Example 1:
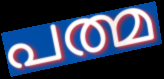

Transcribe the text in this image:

പത്മ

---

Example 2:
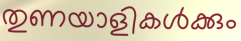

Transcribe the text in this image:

തുണയാളികൾക്കും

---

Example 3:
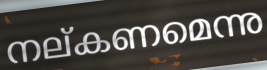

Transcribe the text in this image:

നല്‌കണമെന്നു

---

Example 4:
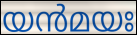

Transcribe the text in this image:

യൻമയഃ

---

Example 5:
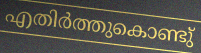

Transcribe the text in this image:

എതിർത്തുകൊണ്ടു്